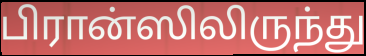
பிரான்ஸிலிருந்து